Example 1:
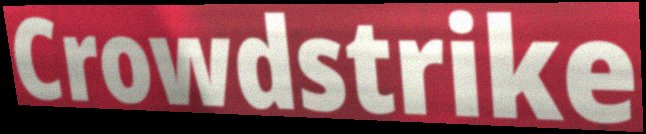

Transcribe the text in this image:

Crowdstrike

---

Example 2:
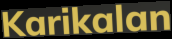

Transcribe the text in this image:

Karikalan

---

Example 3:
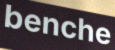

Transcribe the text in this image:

benche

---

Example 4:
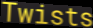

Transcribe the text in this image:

Twists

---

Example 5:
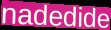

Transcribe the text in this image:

nadedide